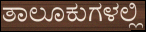
ತಾಲೂಕುಗಳಲ್ಲಿ